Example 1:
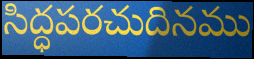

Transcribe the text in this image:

సిద్ధపరచుదినము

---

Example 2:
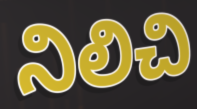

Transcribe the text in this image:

నిలిచి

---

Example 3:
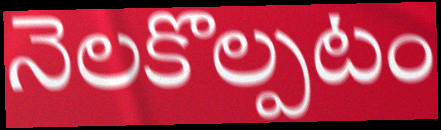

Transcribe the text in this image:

నెలకొల్పటం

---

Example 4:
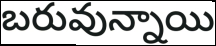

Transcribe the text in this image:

బరువున్నాయి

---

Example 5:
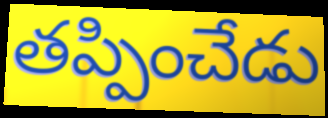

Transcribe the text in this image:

తప్పించేడు